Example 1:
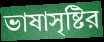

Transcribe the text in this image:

ভাষাসৃষ্টির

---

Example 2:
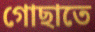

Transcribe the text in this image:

গোছাতে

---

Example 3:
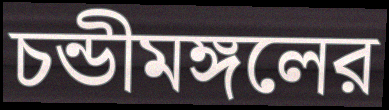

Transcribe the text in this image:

চন্ডীমঙ্গলের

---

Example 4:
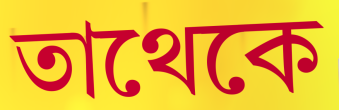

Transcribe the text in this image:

তাথেকে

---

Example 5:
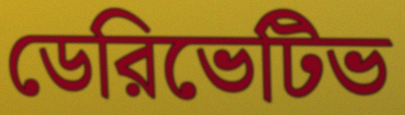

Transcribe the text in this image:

ডেরিভেটিভ